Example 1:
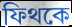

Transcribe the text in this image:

ফিথকে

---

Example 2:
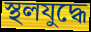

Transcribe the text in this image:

স্থলযুদ্ধে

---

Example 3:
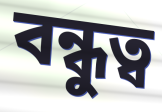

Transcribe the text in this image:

বন্ধুত্ব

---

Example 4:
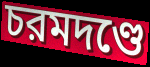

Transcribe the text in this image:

চরমদণ্ডে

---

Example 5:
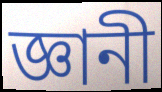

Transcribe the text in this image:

জ্ঞানী